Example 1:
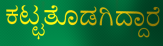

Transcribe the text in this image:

ಕಟ್ಟತೊಡಗಿದ್ದಾರೆ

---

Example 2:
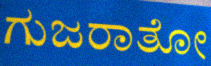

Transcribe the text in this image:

ಗುಜರಾತೋ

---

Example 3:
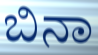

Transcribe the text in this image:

ಬಿನಾ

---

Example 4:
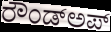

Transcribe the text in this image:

ರೌಂಡ್ಅಪ್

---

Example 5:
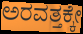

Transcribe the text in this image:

ಅರವತ್ತಕ್ಕೇ